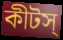
কীটস্